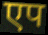
एप